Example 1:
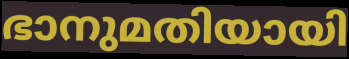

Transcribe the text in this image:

ഭാനുമതിയായി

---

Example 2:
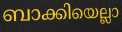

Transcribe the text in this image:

ബാക്കിയെല്ലാ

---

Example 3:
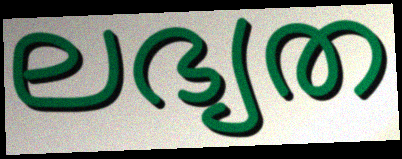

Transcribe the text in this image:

ലഭ്യത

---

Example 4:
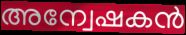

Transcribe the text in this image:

അന്വേഷകൻ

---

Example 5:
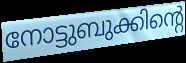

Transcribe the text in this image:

നോട്ടുബുക്കിന്റെ